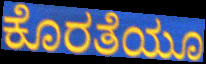
ಕೊರತೆಯೂ